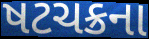
ષટચક્રના